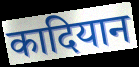
कादियान